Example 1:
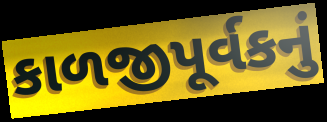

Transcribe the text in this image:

કાળજીપૂર્વકનું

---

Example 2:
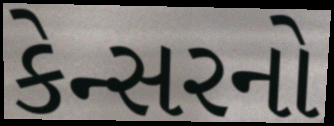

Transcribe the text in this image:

કેન્સરનો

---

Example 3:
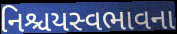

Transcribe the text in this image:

નિશ્ચયસ્વભાવના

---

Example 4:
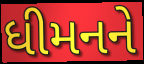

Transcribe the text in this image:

ધીમનને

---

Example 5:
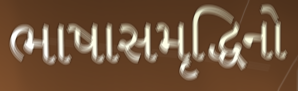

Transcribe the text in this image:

ભાષાસમૃદ્ધિનો